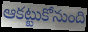
ఆకట్టుకోనుంది